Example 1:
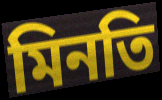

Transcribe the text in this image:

মিনতি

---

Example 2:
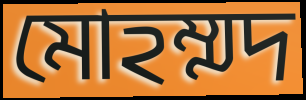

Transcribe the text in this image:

মোহম্মদ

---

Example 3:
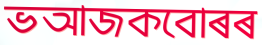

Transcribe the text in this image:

ভআজকবোৰৰ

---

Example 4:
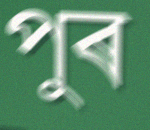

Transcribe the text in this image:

পুৰ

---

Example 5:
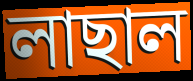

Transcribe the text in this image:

লাছাল